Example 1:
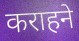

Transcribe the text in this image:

कराहने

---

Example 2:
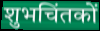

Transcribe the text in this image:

शुभचिंतकों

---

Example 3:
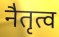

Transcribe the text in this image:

नैतृत्व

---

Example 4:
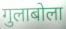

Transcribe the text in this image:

गुलाबोला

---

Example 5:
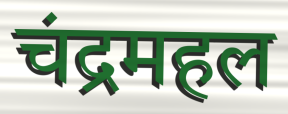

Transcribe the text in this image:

चंद्रमहल